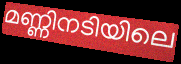
മണ്ണിനടിയിലെ